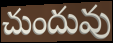
చుందువు